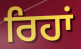
ਰਿਹਾਂ